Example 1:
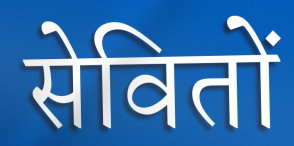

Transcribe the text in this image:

सेवितों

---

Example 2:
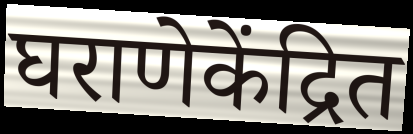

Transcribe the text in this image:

घराणेकेंद्रित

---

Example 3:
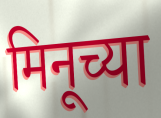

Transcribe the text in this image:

मिनूच्या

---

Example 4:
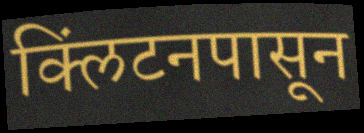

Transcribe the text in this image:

क्लिंटनपासून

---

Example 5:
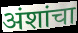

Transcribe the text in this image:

अंशांचा